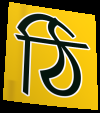
ঠি